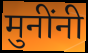
मुनींनी